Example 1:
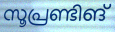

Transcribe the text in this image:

സൂപ്രണ്ടിങ്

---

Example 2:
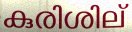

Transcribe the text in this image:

കുരിശില്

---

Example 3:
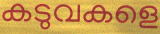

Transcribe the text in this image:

കടുവകളെ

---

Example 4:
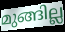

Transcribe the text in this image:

മുങ്ങില്ല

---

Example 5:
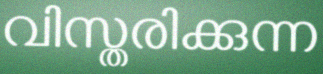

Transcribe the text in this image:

വിസ്തരിക്കുന്ന